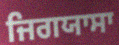
ਜਿਗਯਾਸਾ